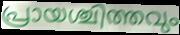
പ്രായശ്ചിത്തവും